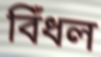
বিঁধল